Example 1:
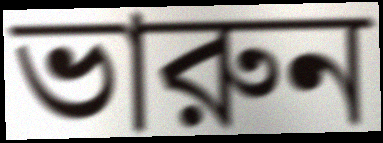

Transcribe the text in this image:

ভারুন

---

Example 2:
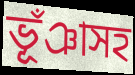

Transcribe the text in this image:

ভূঁঞাসহ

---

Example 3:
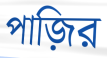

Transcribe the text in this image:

পাজ়ির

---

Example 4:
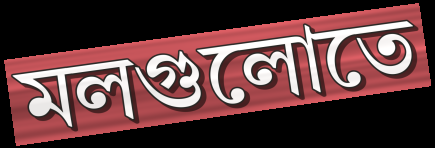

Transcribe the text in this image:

মলগুলোতে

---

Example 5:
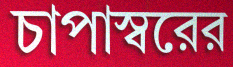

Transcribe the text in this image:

চাপাস্বরের